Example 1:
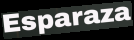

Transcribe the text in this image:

Esparaza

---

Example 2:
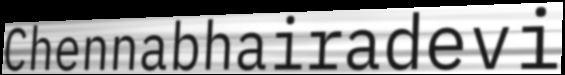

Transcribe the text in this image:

Chennabhairadevi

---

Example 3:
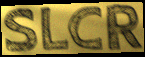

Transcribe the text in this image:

SLCR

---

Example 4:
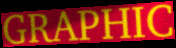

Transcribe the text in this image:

GRAPHIC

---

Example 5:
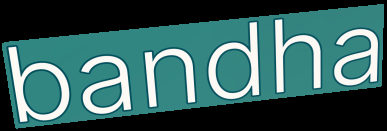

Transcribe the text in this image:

bandha